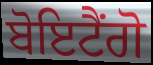
ਬੋਇਟੈਂਗੋ